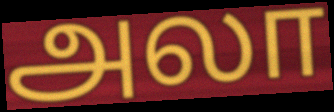
அலா